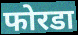
फोरडा